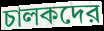
চালকদের